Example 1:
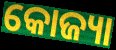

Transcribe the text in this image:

କୋଜ୍ୟା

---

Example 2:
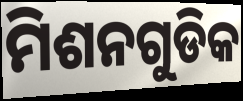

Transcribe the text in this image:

ମିଶନଗୁଡିକ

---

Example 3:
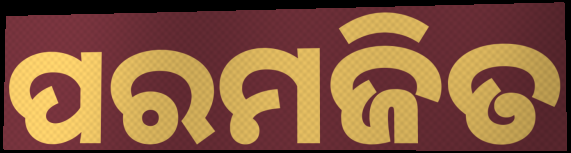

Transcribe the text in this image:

ପରମଜିତ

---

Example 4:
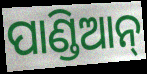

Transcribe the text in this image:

ପାଣ୍ଡିଆନ୍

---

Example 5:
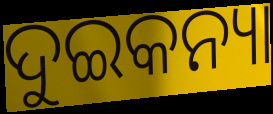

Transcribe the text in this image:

ଦୁଇକନ୍ୟା